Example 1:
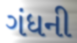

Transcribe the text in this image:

ગંધની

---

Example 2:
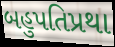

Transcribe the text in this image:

બહુપતિપ્રથા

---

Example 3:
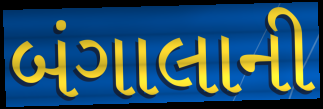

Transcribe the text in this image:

બંગાલાની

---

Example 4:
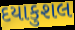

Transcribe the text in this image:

દયાકુશલ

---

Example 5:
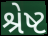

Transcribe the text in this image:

શ્રેષ્ટ